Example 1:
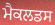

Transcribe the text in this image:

ਮੈਕਲਡਸ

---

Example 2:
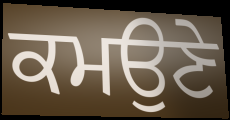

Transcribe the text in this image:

ਕਮਉਣੇ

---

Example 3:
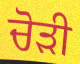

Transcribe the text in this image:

ਚੋੜੀ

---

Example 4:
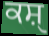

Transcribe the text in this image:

ਕਸ਼ੑ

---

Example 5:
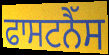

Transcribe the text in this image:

ਫਾਸਟਨੈੱਸ